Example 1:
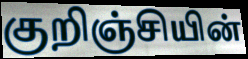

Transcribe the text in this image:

குறிஞ்சியின்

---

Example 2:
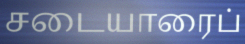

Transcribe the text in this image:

சடையாரைப்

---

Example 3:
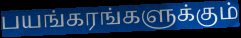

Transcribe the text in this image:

பயங்கரங்களுக்கும்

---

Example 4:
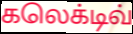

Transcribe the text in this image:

கலெக்டிவ்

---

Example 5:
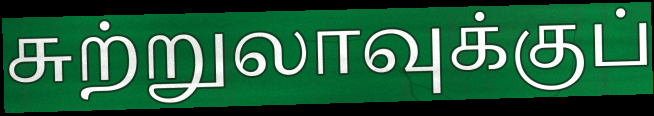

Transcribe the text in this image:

சுற்றுலாவுக்குப்